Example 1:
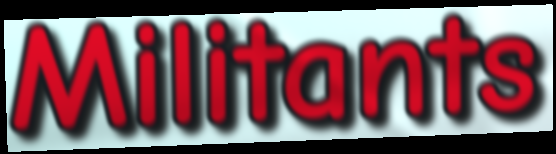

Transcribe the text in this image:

Militants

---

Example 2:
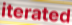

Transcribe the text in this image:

iterated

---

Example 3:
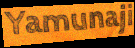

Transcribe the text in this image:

Yamunaji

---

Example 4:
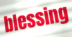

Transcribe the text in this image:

blessing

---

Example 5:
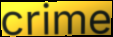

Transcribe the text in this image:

crime